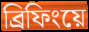
ব্রিফিংয়ে